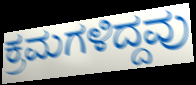
ಕ್ರಮಗಳಿದ್ದವು